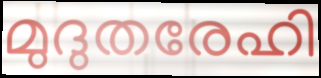
മുദുതരേഹി